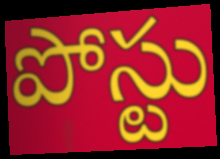
పోస్టు